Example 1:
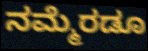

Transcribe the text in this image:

ನಮ್ಮೆರಡೂ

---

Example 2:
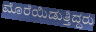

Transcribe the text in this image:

ಮೊರೆಯಿಡುತ್ತಿದ್ದರು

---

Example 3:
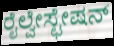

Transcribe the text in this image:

ರೈಲ್ವೇಸ್ಟೇಷನ್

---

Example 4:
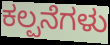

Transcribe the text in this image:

ಕಲ್ಪನೆಗಳು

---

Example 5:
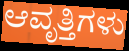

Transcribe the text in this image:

ಆವೃತ್ತಿಗಳು